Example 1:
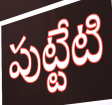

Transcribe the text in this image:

పుట్టేటి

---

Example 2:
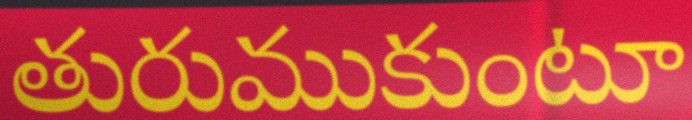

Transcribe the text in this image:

తురుముకుంటూ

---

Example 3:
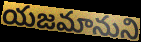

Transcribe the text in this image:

యజమానుని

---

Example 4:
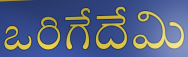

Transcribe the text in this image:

ఒరిగేదేమి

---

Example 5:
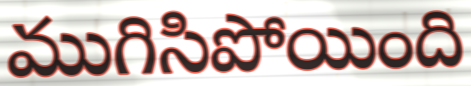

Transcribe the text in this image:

ముగిసిపోయింది